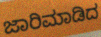
ಜಾರಿಮಾಡಿದ